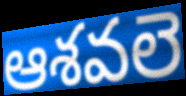
ఆశవలె